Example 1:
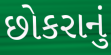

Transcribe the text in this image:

છોકરાનું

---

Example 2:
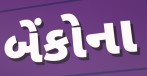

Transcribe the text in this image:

બેંકોના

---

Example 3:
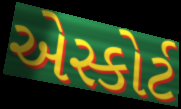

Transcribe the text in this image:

એસ્કોર્ટ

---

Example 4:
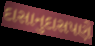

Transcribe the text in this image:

દાસાનુદાસપણે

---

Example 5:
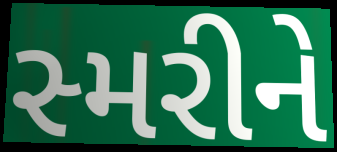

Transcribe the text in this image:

સ્મરીને